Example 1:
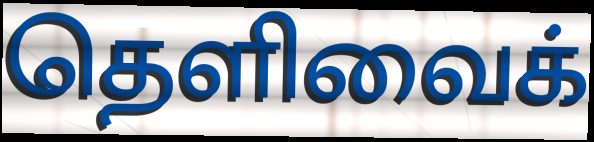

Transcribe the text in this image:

தெளிவைக்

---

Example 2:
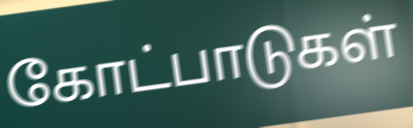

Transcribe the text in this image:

கோட்பாடுகள்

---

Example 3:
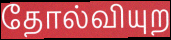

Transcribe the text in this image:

தோல்வியுற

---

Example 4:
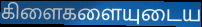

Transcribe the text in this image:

கிளைகளையுடைய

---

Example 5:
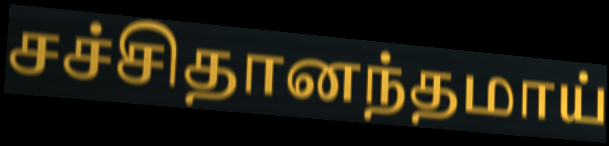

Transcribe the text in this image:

சச்சிதானந்தமாய்